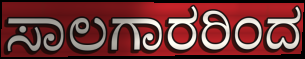
ಸಾಲಗಾರರಿಂದ